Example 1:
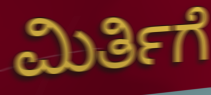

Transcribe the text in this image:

ಮಿರ್ತಿಗೆ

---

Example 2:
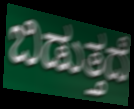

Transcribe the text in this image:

ಬಿಡುತ್ತದೆ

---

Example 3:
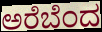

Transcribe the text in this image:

ಅರೆಬೆಂದ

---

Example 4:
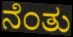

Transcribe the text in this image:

ನೆಂತು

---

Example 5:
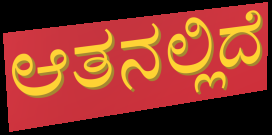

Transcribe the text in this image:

ಆತನಲ್ಲಿದೆ